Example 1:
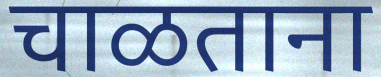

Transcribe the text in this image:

चाळताना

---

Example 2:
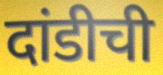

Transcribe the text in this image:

दांडीची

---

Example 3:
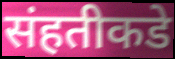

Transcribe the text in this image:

संहतीकडे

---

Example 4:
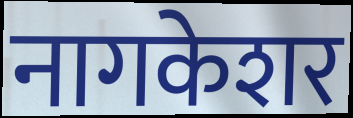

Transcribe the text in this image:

नागकेशर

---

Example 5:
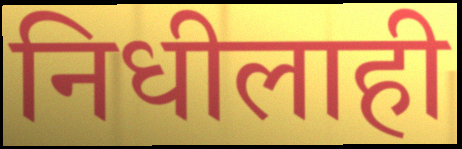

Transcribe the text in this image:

निधीलाही